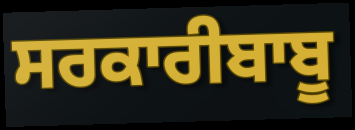
ਸਰਕਾਰੀਬਾਬੂ